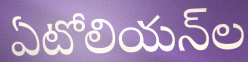
ఏటోలియన్‌ల